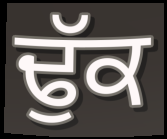
ਢੁੱਕ